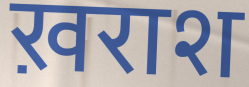
ख़राश